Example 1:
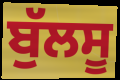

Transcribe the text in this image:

ਬੁੱਲਸੂ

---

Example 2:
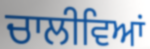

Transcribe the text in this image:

ਚਾਲੀਵਿਆਂ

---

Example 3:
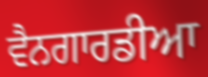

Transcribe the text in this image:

ਵੈਨਗਾਰਡੀਆ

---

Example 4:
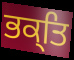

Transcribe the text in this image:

ਭਕ੍ਤਿ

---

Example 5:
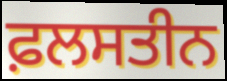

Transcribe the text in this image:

ਫ਼ਲਸਤੀਨ